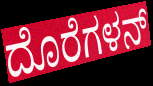
ದೊರೆಗಳನ್